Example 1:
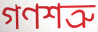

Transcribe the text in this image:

গণশত্রু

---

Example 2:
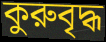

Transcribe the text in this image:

কুরুবৃদ্ধ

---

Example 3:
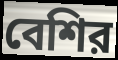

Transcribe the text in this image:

বেশির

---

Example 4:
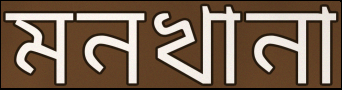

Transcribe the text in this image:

মনখানা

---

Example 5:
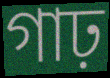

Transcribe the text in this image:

গাঢ়